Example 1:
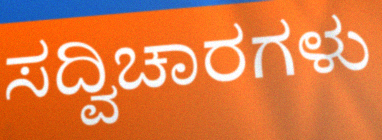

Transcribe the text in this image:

ಸದ್ವಿಚಾರಗಳು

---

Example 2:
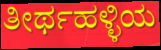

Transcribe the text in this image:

ತೀರ್ಥಹಳ್ಳಿಯ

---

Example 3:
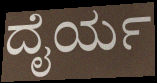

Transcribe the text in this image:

ದೈರ್ಯ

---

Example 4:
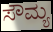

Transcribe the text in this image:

ಸೌಮ್ಯ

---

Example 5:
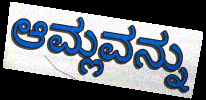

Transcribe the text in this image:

ಆಮ್ಲವನ್ನು